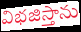
విభజిస్తాను